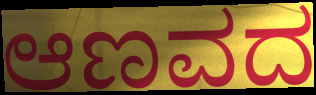
ಆಣವದ